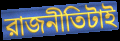
রাজনীতিটাই